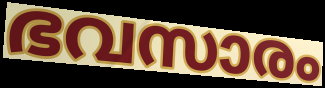
ഭവസാരം